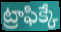
ట్రాఫిక్కే